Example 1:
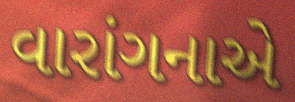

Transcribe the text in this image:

વારાંગનાએ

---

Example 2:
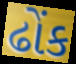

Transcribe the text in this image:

ઢોંક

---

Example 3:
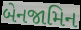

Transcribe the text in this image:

બેનજામિન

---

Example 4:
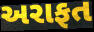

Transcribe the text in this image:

અરાફત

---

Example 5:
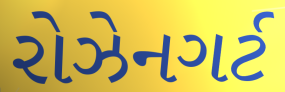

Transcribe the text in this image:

રોઝેનગર્ટ